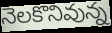
నెలకొనివున్న